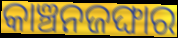
କାଞ୍ଚନଜଙ୍ଘାର